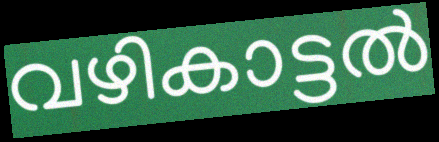
വഴികാട്ടൽ